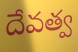
దేవత్వ